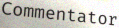
Commentator